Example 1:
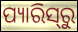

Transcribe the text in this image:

ପ୍ୟାରିସ୍‌ରୁ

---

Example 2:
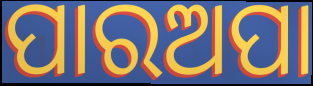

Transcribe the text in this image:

ପାରଅପା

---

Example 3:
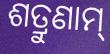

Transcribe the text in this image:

ଶତ୍ରୁଣାମ୍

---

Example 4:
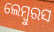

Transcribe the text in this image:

ଲେମ୍ବୁରସ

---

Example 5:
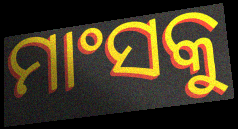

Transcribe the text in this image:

ମାଂସକୁ